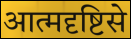
आत्मदृष्टिसे